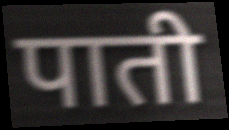
पाती